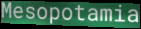
Mesopotamia